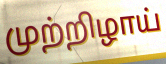
முற்றிழாய்